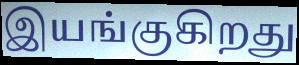
இயங்குகிறது